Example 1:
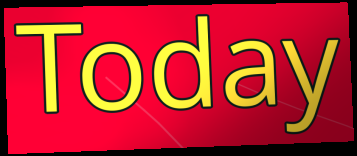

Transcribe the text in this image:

Today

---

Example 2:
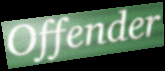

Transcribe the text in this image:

Offender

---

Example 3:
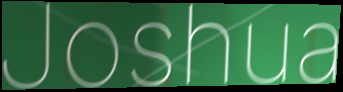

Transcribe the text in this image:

Joshua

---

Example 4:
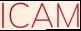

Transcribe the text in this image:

ICAM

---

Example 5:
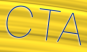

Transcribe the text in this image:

CTA